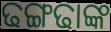
ଢଙ୍ଗଢାଙ୍କ